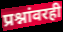
प्रश्नांवरही